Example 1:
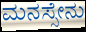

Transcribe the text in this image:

ಮನಸ್ಸೇನು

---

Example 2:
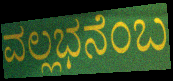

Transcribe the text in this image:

ವಲ್ಲಭನೆಂಬ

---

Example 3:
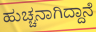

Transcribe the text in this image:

ಹುಚ್ಚನಾಗಿದ್ದಾನೆ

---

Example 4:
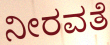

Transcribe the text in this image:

ನೀರವತೆ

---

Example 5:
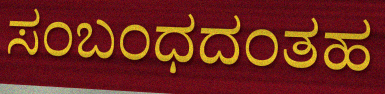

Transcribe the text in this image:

ಸಂಬಂಧದಂತಹ